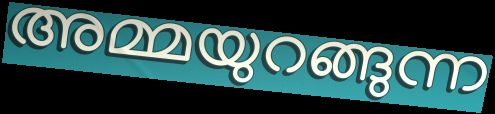
അമ്മയുറങ്ങുന്ന